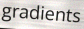
gradients